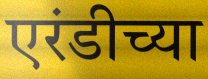
एरंडीच्या